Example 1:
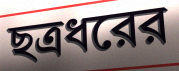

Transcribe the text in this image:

ছত্রধরের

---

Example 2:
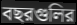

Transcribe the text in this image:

বছরগুলির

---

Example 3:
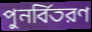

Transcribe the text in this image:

পুনর্বিতরণ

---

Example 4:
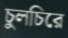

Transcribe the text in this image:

চুলচিরে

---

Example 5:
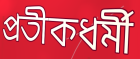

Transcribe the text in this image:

প্রতীকধর্মী